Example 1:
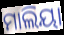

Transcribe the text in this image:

ମାଲିୟା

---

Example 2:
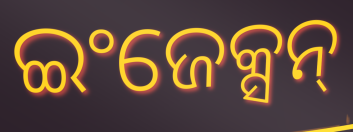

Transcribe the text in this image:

ଇଂଜେକ୍ସନ୍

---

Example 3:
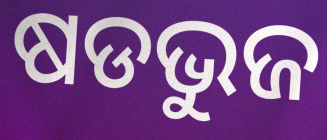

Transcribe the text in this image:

ଷଡଭୁଜ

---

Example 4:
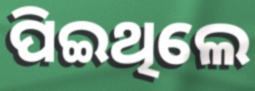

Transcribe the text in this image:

ପିଇଥିଲେ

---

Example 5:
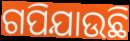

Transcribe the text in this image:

ଗପିଯାଉଛି